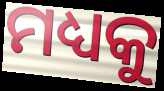
ମଧ୍ୟକୁ